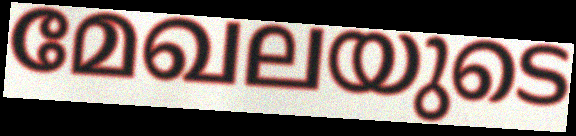
മേഖലയുടെ